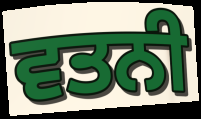
ਵਤਨੀ